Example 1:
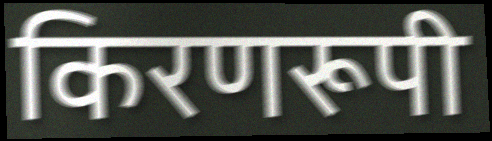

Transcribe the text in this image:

किरणरूपी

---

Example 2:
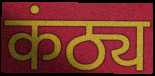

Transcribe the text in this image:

कंठ्य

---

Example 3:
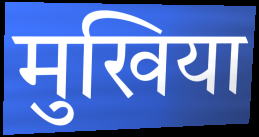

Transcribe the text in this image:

मुखिया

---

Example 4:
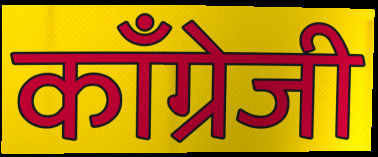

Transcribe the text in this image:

काँग्रेजी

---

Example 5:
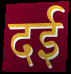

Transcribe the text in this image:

दई